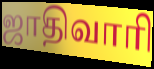
ஜாதிவாரி